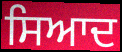
ਸਿਆਦ